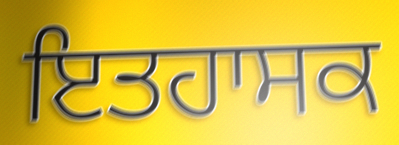
ਇਤਹਾਸਕ